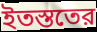
ইতস্ততের